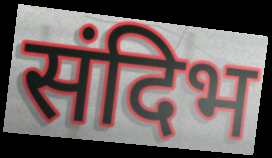
संदिभ